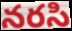
నరసి